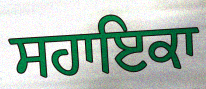
ਸਹਾਇਕਾ